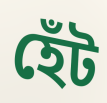
হেঁট